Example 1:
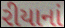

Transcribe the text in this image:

રીયાનાં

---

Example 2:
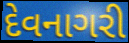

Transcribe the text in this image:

દેવનાગરી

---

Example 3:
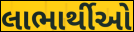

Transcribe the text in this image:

લાભાર્થીઓ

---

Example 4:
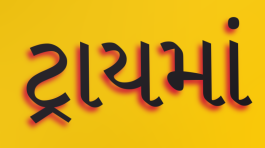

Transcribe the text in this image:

ટ્રાયમાં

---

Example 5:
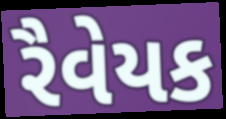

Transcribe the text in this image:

રૈવેયક